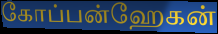
கோப்பன்ஹேகன்